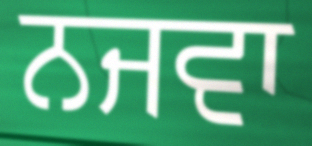
ਨਜਵਾ